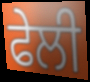
ਫੇਲੀ